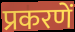
प्रकरणें